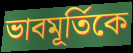
ভাবমূর্তিকে